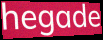
hegade